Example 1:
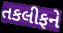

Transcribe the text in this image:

તકલીફને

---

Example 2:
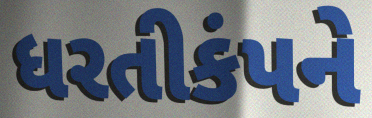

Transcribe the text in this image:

ધરતીકંપને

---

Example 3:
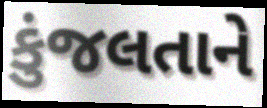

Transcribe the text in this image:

કુંજલતાને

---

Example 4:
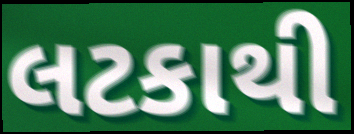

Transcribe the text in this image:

લટકાથી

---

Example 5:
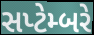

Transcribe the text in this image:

સપ્ટેમ્બરે